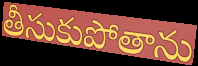
తీసుకుపోతాను